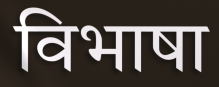
विभाषा